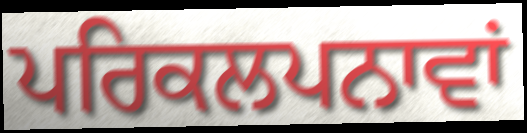
ਪਰਿਕਲਪਨਾਵਾਂ